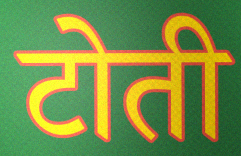
टोती